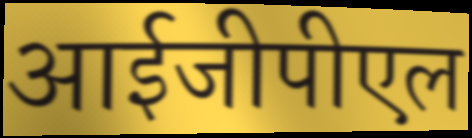
आईजीपीएल